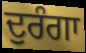
ਦੁਰੰਗਾ